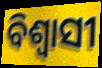
ବିଶ୍ୱାସୀ